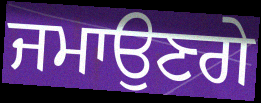
ਜਮਾਉਣਗੇ